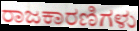
ರಾಜಕಾರಣಿಗಳು